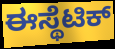
ಈಸ್ಥೆಟಿಕ್